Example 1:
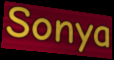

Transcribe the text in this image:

Sonya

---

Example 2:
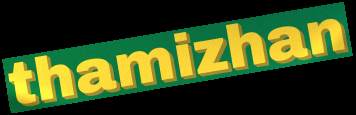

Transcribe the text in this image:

thamizhan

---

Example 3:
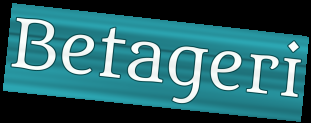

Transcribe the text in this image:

Betageri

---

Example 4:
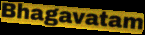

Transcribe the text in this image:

Bhagavatam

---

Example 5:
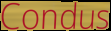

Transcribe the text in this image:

Condus